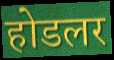
होडलर